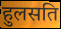
हुलसति